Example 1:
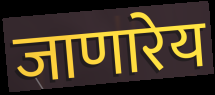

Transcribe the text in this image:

जाणारेय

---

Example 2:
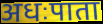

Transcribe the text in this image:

अधःपाता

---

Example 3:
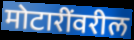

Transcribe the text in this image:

मोटारींवरील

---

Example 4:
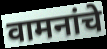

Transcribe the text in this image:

वामनांचे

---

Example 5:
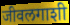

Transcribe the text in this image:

जीवलगाशी